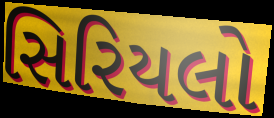
સિરિયલો